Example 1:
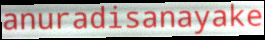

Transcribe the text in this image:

anuradisanayake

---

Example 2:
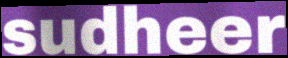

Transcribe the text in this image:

sudheer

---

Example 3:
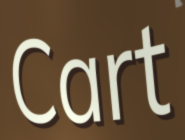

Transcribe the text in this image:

Cart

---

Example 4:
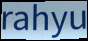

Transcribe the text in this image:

rahyu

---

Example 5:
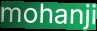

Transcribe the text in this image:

mohanji